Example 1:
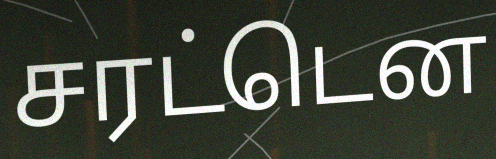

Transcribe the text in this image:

சரட்டென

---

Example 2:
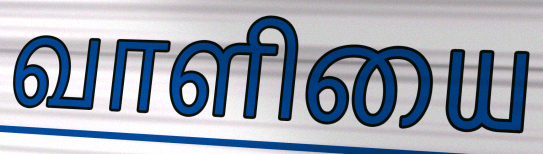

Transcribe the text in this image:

வாளியை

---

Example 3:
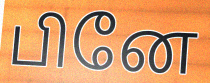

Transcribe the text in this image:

பினே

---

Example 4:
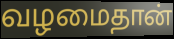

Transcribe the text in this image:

வழமைதான்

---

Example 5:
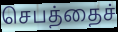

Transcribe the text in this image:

செபத்தைச்